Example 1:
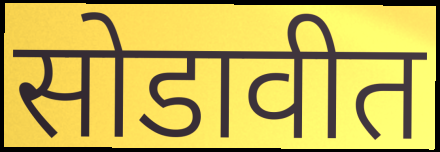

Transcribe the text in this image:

सोडावीत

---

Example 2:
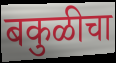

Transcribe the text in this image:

बकुळीचा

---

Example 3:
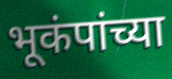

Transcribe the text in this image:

भूकंपांच्या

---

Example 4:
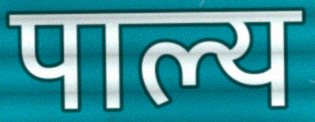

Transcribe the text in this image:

पाल्य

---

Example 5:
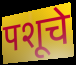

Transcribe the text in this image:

पशूचे